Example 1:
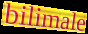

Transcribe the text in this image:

bilimale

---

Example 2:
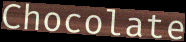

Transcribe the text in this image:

Chocolate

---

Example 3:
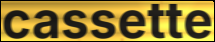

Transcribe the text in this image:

cassette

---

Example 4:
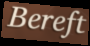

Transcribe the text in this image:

Bereft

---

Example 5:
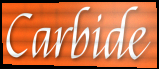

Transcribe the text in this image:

Carbide